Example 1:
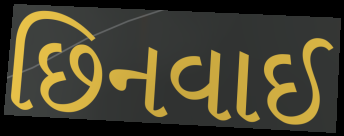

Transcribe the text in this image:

છિનવાઈ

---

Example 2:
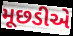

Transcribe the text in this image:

મૂછડીએ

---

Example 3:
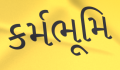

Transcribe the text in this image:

કર્મભૂમિ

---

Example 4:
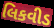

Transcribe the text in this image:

લિકવીડ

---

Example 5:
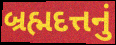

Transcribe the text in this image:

બ્રહ્મદત્તનું